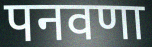
पनवणा